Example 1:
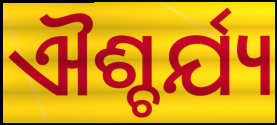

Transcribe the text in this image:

ଐଶ୍ଚର୍ଯ୍ୟ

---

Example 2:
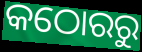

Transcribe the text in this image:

କଠୋରରୁ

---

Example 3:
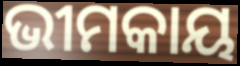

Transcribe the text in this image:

ଭୀମକାୟ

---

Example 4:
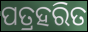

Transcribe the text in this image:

ପତ୍ରହରିତ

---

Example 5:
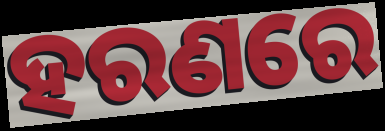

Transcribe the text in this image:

ହରଣରେ